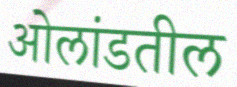
ओलांडतील